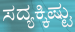
ಸದ್ಯಕ್ಕಿಷ್ಟು